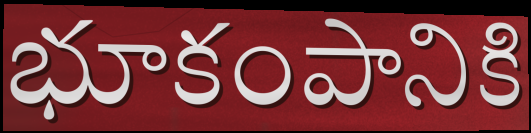
భూకంపానికి